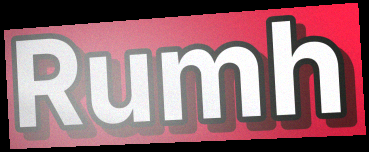
Rumh